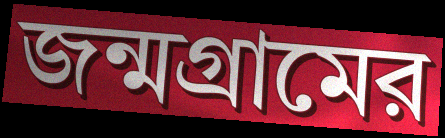
জন্মগ্রামের